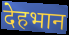
देहभान